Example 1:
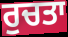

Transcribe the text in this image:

ਰੁਚਤਾ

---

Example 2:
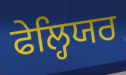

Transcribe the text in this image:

ਫੇਲ੍ਹਿਯਰ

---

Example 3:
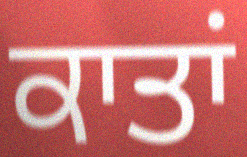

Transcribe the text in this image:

ਕਾਤਾਂ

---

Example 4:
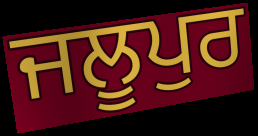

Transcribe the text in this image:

ਜਲੂਪੁਰ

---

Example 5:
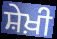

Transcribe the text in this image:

ਸ਼ੇਖ਼ੀ